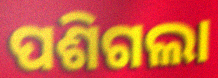
ପଶିଗଲା